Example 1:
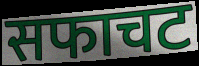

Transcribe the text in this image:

सफाचट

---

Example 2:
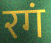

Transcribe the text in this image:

रगं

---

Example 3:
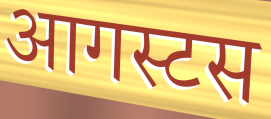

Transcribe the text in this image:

आगस्टस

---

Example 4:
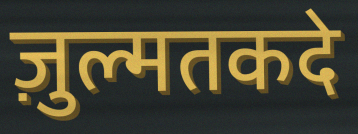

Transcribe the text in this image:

ज़ुल्मतकदे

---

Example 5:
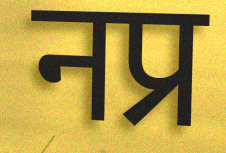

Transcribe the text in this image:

नप्र